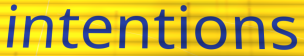
intentions